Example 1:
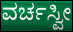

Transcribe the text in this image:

ವರ್ಚಸ್ವೀ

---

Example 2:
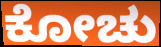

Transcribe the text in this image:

ಕೋಚು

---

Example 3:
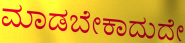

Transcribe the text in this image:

ಮಾಡಬೇಕಾದುದೇ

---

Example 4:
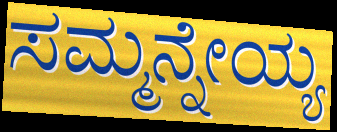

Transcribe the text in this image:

ಸಮ್ಮನ್ನೇಯ್ಯ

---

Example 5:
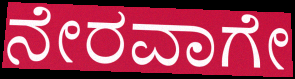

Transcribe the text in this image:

ನೇರವಾಗೇ